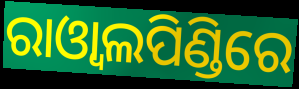
ରାଓ୍ଵାଲପିଣ୍ଡିରେ